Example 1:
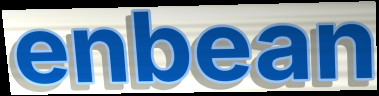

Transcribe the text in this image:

enbean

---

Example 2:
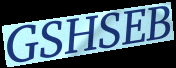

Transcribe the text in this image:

GSHSEB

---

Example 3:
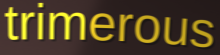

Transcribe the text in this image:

trimerous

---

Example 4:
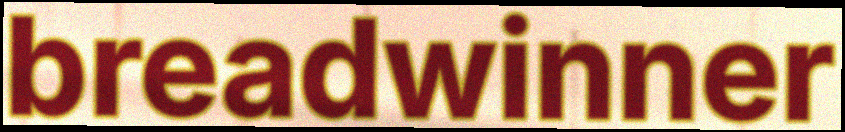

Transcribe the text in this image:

breadwinner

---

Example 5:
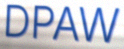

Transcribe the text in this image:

DPAW